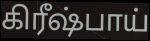
கிரீஷ்பாய்